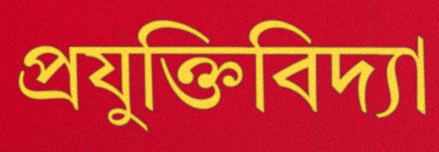
প্রযুক্তিবিদ্যা